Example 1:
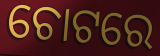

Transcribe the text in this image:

ଚୋଟରେ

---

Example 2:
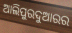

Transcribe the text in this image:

ଆଲିପୁରଦୁଆରର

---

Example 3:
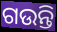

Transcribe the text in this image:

ଗଉନ୍ତି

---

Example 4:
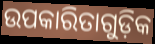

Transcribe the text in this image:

ଉପକାରିତାଗୁଡ଼ିକ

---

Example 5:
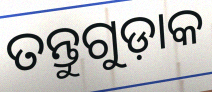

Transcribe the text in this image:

ତନ୍ତୁଗୁଡ଼ାକ